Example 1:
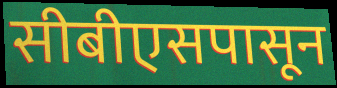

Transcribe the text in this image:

सीबीएसपासून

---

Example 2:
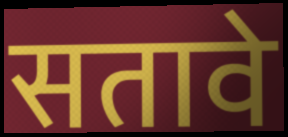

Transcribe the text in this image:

सतावे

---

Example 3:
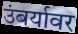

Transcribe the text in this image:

उंबर्यावर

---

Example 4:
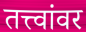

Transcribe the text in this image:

तत्त्वांवर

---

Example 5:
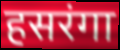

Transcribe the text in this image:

हसरंगा